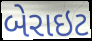
બેરાઇટ